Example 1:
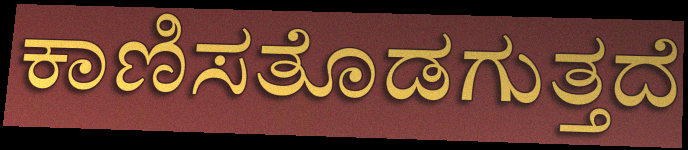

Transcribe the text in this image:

ಕಾಣಿಸತೊಡಗುತ್ತದೆ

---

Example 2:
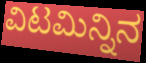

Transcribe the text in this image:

ವಿಟಮಿನ್ನಿನ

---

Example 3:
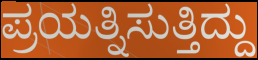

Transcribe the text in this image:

ಪ್ರಯತ್ನಿಸುತ್ತಿದ್ದು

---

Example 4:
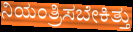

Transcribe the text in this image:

ನಿಯಂತ್ರಿಸಬೇಕಿತ್ತು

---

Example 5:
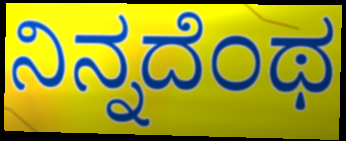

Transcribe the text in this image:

ನಿನ್ನದೆಂಥ